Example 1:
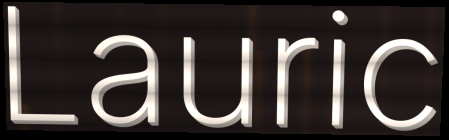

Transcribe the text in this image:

Lauric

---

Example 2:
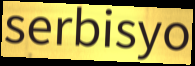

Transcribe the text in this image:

serbisyo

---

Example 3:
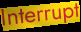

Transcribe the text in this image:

Interrupt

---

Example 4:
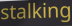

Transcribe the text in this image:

stalking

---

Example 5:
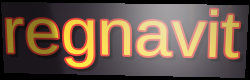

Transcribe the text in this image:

regnavit